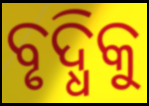
ବୃଦ୍ଧିକୁ